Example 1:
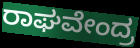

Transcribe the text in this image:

ರಾಘವೇಂದ್ರ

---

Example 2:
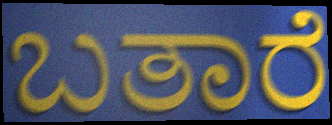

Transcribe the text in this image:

ಬತಾರೆ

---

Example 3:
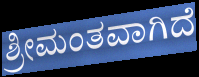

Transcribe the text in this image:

ಶ್ರೀಮಂತವಾಗಿದೆ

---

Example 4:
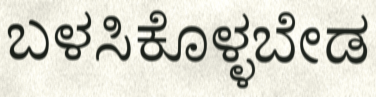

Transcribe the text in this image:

ಬಳಸಿಕೊಳ್ಳಬೇಡ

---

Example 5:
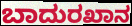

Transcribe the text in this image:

ಬಾದುರಖಾನ